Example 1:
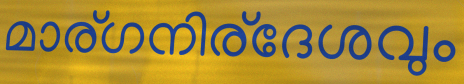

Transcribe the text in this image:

മാര്ഗനിര്ദേശവും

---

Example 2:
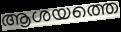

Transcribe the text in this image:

ആശയത്തെ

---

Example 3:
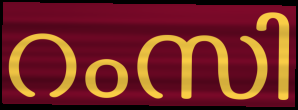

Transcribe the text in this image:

റംസി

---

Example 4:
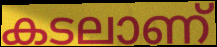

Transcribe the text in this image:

കടലാണ്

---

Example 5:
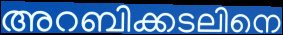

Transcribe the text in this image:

അറബിക്കടലിനെ